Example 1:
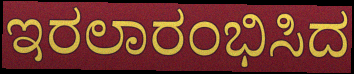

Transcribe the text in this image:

ಇರಲಾರಂಭಿಸಿದ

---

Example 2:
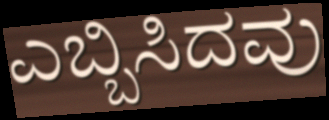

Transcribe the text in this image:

ಎಬ್ಬಿಸಿದವು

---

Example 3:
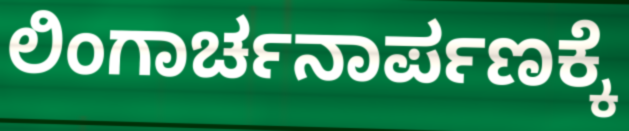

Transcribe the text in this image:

ಲಿಂಗಾರ್ಚನಾರ್ಪಣಕ್ಕೆ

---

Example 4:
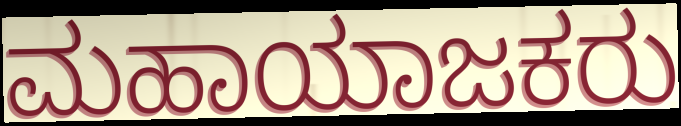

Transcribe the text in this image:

ಮಹಾಯಾಜಕರು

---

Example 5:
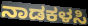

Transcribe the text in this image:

ನಾಡಕಳಸಿ